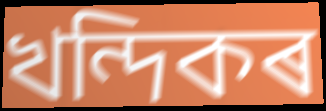
খন্দিকৰ